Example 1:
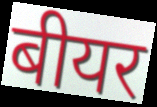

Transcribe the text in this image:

बीयर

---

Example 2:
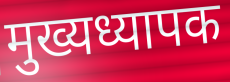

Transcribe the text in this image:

मुख्यध्यापक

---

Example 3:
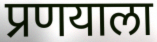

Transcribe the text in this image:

प्रणयाला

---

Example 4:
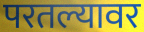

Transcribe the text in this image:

परतल्यावर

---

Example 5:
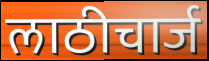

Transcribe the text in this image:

लाठीचार्ज